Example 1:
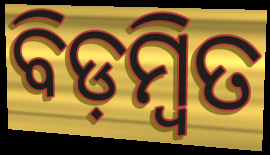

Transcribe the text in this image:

ବିଡ଼ମ୍ବିତ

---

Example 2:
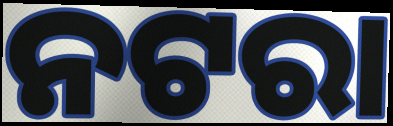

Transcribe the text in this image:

ନଟରା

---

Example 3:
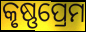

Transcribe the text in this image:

କୃଷ୍ଣପ୍ରେମ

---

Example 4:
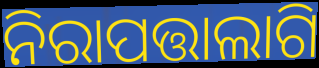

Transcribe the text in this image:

ନିରାପତ୍ତାଲାଗି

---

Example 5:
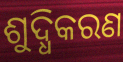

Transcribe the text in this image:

ଶୁଦ୍ଧିକରଣ